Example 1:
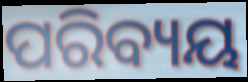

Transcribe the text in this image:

ପରିବ୍ୟୟ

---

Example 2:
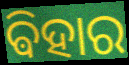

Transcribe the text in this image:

ଵିହାର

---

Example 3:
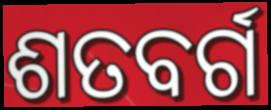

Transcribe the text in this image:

ଶତବର୍ଗ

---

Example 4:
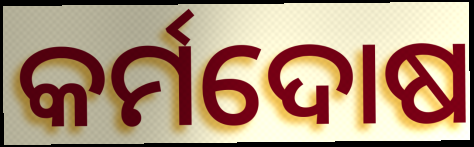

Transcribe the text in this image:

କର୍ମଦୋଷ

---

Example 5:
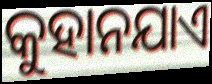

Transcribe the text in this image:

କୁହାନଯାଏ